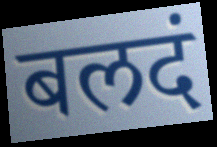
बलदं